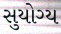
સુયોગ્ય